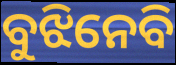
ବୁଝିନେବି